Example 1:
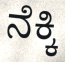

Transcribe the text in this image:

ನೆಕ್ಕಿ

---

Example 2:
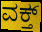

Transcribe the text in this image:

ವಕ್ತ್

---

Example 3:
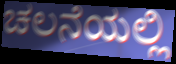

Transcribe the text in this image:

ಚಲನೆಯಲ್ಲಿ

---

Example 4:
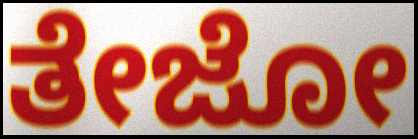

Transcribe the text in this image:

ತೇಜೋ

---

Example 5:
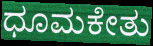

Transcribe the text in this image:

ಧೂಮಕೇತು